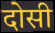
दोसी